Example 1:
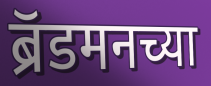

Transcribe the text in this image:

ब्रॅडमनच्या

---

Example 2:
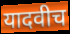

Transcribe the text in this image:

यादवीच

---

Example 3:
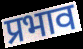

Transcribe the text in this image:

प्रभाव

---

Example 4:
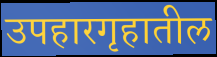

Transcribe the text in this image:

उपहारगृहातील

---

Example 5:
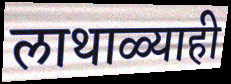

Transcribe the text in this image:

लाथाळ्याही